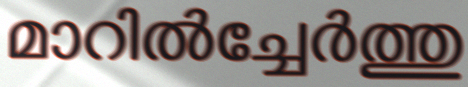
മാറിൽച്ചേർത്തു